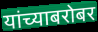
यांच्याबरोबर